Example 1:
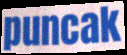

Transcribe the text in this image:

puncak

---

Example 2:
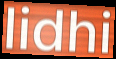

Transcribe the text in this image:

lidhi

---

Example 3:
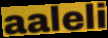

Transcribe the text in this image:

aaleli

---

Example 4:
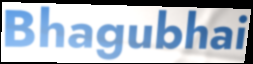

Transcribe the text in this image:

Bhagubhai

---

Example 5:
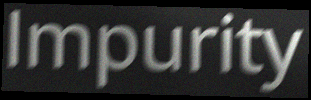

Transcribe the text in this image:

Impurity